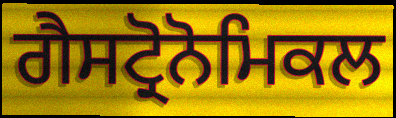
ਗੈਸਟ੍ਰੋਨੋਮਿਕਲ